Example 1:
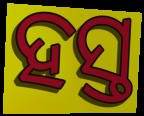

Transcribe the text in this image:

ହସ୍ତ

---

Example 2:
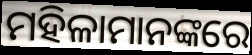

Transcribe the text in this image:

ମହିଳାମାନଙ୍କରେ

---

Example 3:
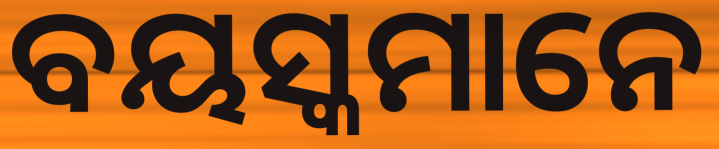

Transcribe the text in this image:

ବୟସ୍କମାନେ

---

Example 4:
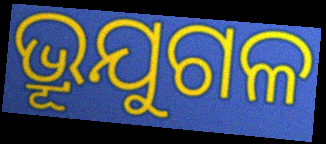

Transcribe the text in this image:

ଭ୍ରୂଯୁଗଳ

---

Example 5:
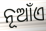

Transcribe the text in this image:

ନୂଆଁଏ